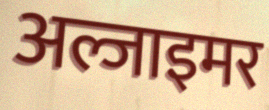
अल्जाइमर